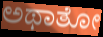
ಅಥಾತೋ